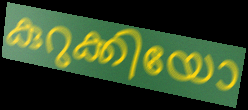
കുറുക്കിയോ